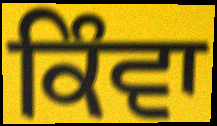
ਕਿੰਵਾ